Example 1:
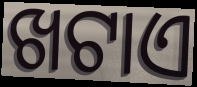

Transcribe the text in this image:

ଖଟାଏ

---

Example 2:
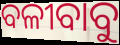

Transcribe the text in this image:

ବଳୀବାବୁ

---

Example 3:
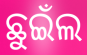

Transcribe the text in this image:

ଛୁଇଁଲ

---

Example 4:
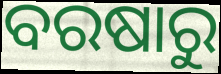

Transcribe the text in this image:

ବରଷାରୁ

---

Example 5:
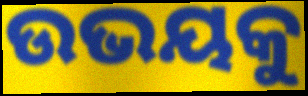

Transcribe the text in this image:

ଉଭୟକୁ